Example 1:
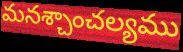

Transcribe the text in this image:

మనశ్చాంచల్యము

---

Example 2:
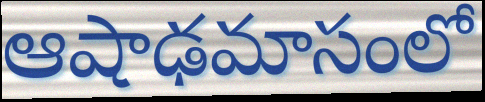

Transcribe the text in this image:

ఆషాఢమాసంలో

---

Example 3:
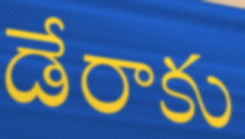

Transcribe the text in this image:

డేరాకు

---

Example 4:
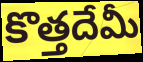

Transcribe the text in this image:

కొత్తదేమీ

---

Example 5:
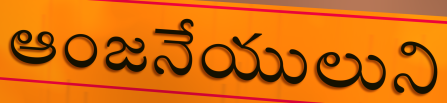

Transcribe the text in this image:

ఆంజనేయులుని